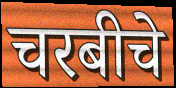
चरबीचे